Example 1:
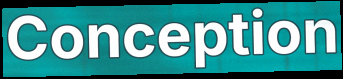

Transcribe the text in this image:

Conception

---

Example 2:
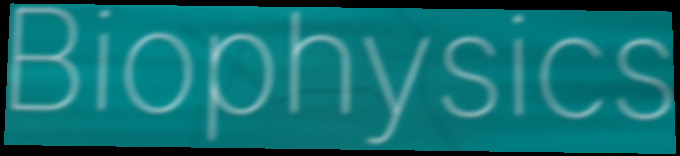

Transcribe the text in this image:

Biophysics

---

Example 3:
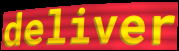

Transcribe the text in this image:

deliver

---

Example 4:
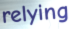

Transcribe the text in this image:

relying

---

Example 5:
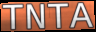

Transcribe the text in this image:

TNTA